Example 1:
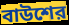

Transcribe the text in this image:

বাউশের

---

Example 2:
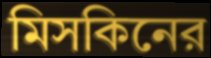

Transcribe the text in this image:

মিসকিনের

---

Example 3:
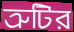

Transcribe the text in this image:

ত্রুটির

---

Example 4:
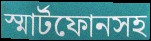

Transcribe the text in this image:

স্মার্টফোনসহ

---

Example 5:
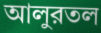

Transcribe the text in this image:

আলুরতল